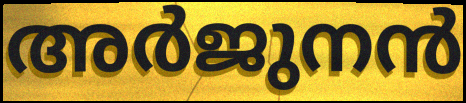
അർജുനൻ